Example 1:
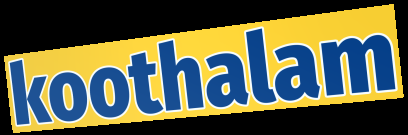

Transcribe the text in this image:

koothalam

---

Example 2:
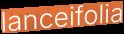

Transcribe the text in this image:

lanceifolia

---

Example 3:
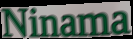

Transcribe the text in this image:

Ninama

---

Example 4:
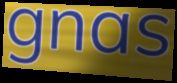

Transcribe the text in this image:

gnas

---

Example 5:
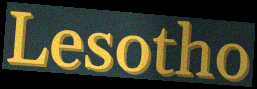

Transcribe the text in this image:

Lesotho